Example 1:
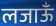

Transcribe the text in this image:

लजाऊँ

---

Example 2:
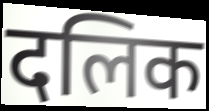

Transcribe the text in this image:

दलिक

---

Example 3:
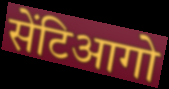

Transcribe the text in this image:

सेंटिआगो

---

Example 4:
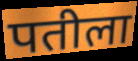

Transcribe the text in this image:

पतीला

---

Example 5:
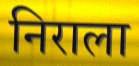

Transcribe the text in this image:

निराला